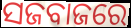
ସଜବାଜରେ